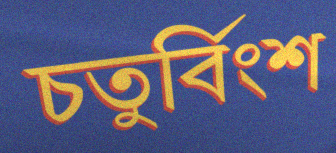
চতুৰ্বিংশ